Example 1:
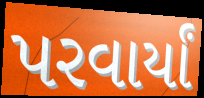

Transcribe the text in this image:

પરવાર્યાં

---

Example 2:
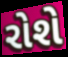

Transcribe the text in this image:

રોશે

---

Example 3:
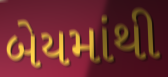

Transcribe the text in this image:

બેયમાંથી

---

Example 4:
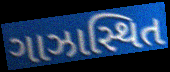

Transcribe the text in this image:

ગાઝાસ્થિત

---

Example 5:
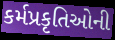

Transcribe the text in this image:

કર્મપ્રકૃતિઓની